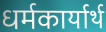
धर्मकार्यार्थ